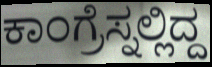
ಕಾಂಗ್ರೆಸ್ನಲ್ಲಿದ್ದ